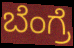
ಬೆಂಗ್ರೆ